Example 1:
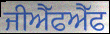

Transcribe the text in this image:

ਜੀਐੱਫਐੱਫ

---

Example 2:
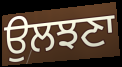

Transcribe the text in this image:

ਉਲਝਣਾ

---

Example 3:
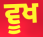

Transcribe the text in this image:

ਵੂਖ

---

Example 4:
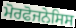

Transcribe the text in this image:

ਮੋਰਫੋਜਨੇਸਿਸ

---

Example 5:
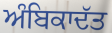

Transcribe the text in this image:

ਅੰਬਿਕਾਦੱਤ